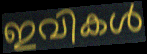
ഇവികൾ